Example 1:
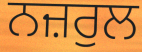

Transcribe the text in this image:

ਨਜ਼ਰੁਲ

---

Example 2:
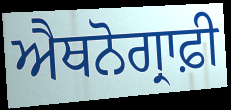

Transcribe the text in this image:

ਐਥਨੋਗ੍ਰਾਫ਼ੀ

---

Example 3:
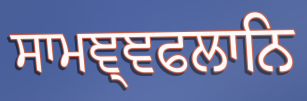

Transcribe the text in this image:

ਸਾਮਞ੍ਞਫਲਾਨਿ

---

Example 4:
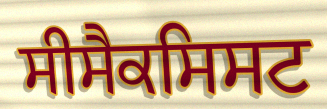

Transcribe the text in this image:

ਸੀਸੈਕਸਿਸਟ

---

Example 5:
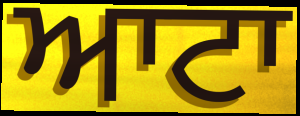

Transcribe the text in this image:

ਆਟਾ